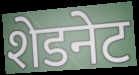
शेडनेट